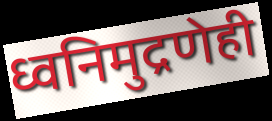
ध्वनिमुद्रणेही